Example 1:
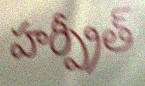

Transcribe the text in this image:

హర్ప్రీత్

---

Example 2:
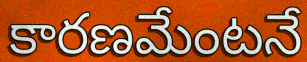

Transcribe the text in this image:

కారణమేంటనే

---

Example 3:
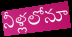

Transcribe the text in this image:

నీళ్లలోనూ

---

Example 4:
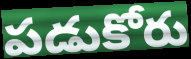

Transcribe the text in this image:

పడుకోరు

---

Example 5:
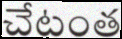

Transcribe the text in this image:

చేటంత